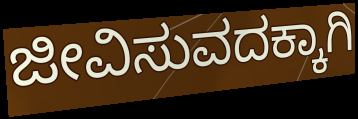
ಜೀವಿಸುವದಕ್ಕಾಗಿ